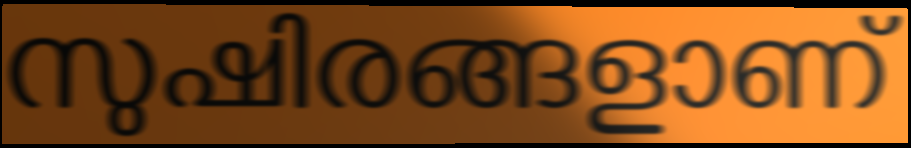
സുഷിരങ്ങളാണ്